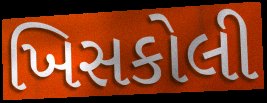
ખિસકોલી